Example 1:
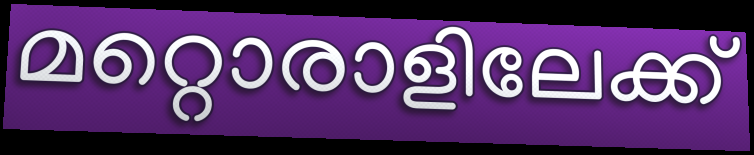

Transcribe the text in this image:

മറ്റൊരാളിലേക്ക്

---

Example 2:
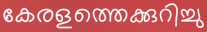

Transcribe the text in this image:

കേരളത്തെക്കുറിച്ചു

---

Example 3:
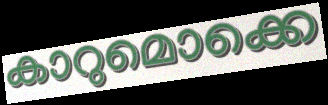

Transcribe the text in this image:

കാറുമൊക്കെ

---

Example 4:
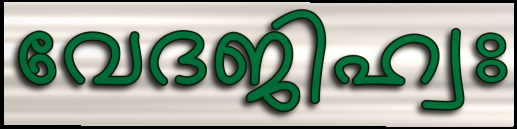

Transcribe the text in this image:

വേദജിഹ്വഃ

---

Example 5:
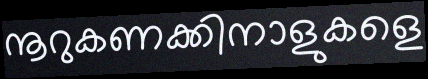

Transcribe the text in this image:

നൂറുകണക്കിനാളുകളെ